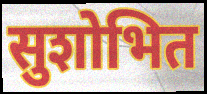
सुशोभित